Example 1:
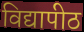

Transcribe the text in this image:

विद्यापीठ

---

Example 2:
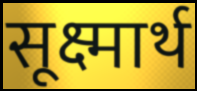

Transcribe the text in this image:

सूक्ष्मार्थ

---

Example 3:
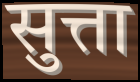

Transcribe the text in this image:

सुत्ता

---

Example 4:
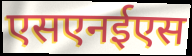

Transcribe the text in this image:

एसएनईएस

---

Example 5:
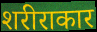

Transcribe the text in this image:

शरीराकार